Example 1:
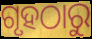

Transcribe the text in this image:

ଗୃହଠାରୁ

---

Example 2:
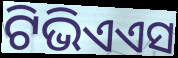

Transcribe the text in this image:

ଟିଭିଏଏସ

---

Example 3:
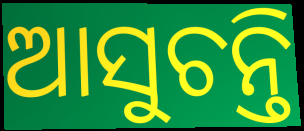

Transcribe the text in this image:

ଆସୁଚନ୍ତି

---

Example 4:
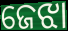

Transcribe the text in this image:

ଜେଝା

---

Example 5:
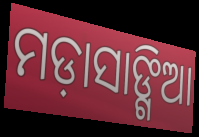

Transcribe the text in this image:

ମଡ଼ାସାଙ୍ଗିଆ